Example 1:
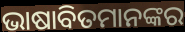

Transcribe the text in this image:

ଭାଷାବିତମାନଙ୍କର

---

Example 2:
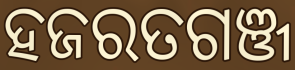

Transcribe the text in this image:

ହଜରତଗଞ୍ଜ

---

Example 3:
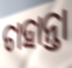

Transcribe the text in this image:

ଚାହାନ୍ତା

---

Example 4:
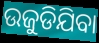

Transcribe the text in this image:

ଉଜୁଡିଯିବା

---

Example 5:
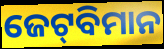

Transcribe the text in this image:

ଜେଟ୍‍ବିମାନ